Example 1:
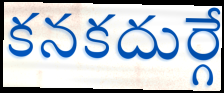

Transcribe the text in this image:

కనకదుర్గే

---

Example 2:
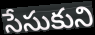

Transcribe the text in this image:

సేసుకుని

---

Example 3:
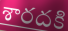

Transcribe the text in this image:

శారదకి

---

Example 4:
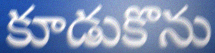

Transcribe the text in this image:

కూడుకొను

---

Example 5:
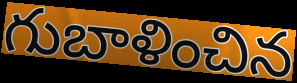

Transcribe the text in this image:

గుబాళించిన